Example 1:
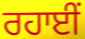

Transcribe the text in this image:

ਰਹਾਈਂ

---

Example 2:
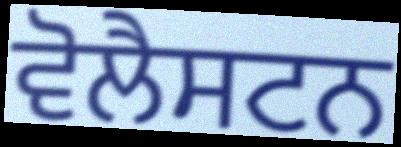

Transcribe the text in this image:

ਵੋਲੈਸਟਨ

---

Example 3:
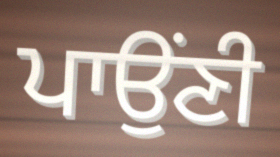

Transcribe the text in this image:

ਪਾਉਂਣੀ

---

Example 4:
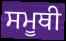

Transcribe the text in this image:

ਸਮੂਥੀ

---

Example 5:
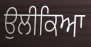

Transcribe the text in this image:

ਉਲੀਕਿਆ